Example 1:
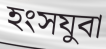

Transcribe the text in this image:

হংসযুবা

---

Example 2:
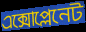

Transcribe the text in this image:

এক্সোপ্লেনেট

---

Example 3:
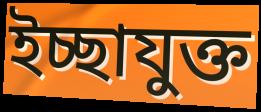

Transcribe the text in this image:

ইচ্ছাযুক্ত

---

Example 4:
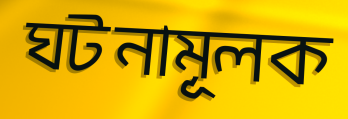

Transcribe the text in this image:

ঘটনামূলক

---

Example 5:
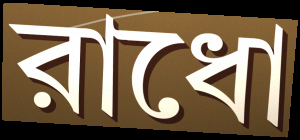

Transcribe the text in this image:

রাধো